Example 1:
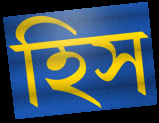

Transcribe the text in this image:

হিস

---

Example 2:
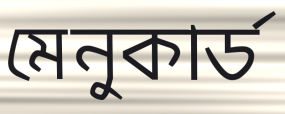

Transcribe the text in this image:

মেনুকার্ড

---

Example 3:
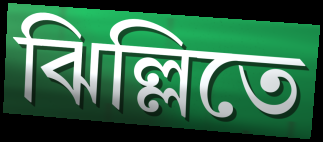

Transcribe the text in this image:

ঝিল্লিতে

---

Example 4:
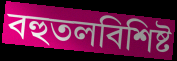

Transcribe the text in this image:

বহুতলবিশিষ্ট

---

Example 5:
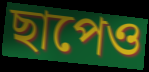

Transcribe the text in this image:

ছাপেও